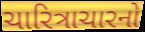
ચારિત્રાચારનો